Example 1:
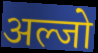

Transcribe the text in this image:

अल्जो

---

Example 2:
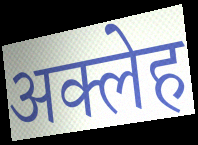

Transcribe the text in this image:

अक्लेह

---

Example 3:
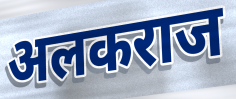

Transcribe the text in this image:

अलकराज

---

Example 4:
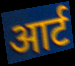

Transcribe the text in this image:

आर्ट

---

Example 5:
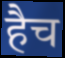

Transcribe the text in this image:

हैच